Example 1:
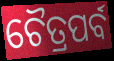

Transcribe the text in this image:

ଚୈତ୍ରପର୍ବ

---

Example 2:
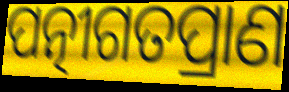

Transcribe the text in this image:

ପତ୍ନୀଗତପ୍ରାଣ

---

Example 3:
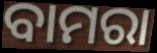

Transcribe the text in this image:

ବାମରା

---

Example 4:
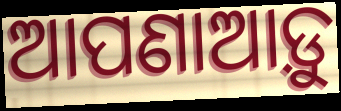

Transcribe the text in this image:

ଆପଣାଆଡ଼ୁ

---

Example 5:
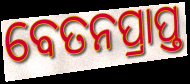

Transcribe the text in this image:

ବେତନପ୍ରାପ୍ତ